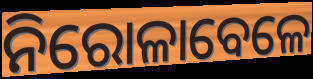
ନିରୋଳାବେଳେ